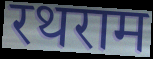
रथराम